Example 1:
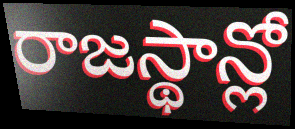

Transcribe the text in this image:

రాజస్థాన్లో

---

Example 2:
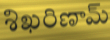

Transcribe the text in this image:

శిఖరిణామ్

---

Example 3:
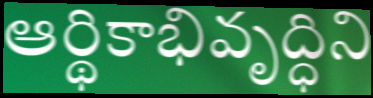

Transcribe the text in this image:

ఆర్థికాభివృద్ధిని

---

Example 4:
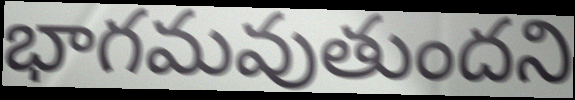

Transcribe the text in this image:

భాగమవుతుందని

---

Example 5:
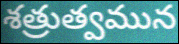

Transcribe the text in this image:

శత్రుత్వమున